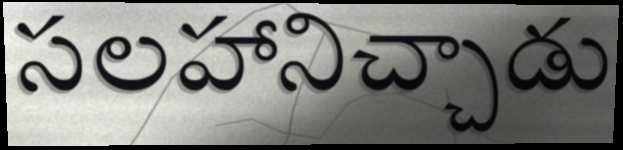
సలహానిచ్చాడు